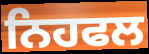
ਨਿਹਫਲ